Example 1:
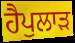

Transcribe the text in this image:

ਹੈਪੁਲਾੜ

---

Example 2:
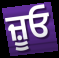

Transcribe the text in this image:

ਜ਼ੂਓ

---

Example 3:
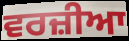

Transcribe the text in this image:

ਵਰਜ਼ੀਆ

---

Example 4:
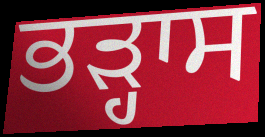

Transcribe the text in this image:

ਭੜ੍ਹਾਸ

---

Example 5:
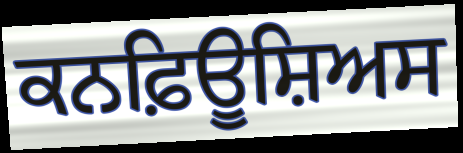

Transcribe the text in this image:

ਕਨਫ਼ਿਊਸ਼ਿਅਸ